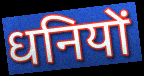
धनियों